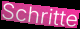
Schritte